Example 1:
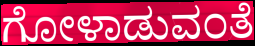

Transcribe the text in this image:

ಗೋಳಾಡುವಂತೆ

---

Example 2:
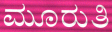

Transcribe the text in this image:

ಮೂರುತಿ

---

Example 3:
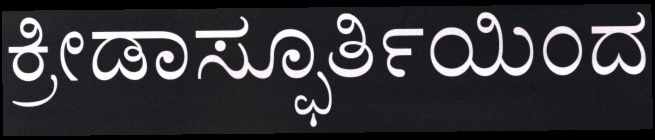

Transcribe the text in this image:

ಕ್ರೀಡಾಸ್ಫೂರ್ತಿಯಿಂದ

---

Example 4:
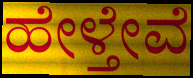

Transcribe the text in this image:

ಹೇಳ್ತೇವೆ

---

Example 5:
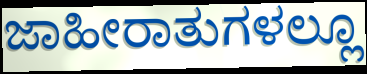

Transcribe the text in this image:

ಜಾಹೀರಾತುಗಳಲ್ಲೂ